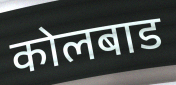
कोलबाड